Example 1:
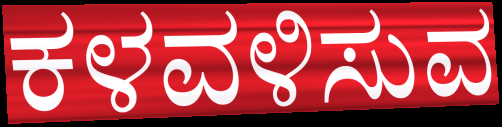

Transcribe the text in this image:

ಕಳವಳಿಸುವ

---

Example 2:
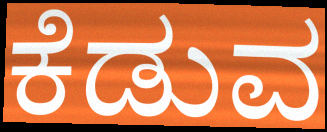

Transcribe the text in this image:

ಕೆಡುವ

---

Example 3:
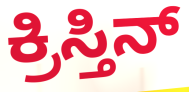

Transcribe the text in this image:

ಕ್ರಿಸ್ತಿನ್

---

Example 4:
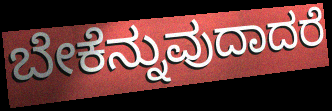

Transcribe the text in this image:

ಬೇಕೆನ್ನುವುದಾದರೆ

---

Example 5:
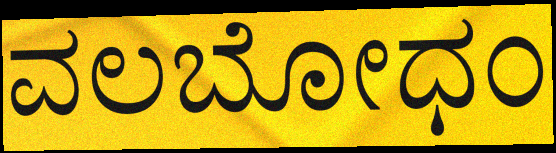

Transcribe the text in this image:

ವಲಬೋಧಂ